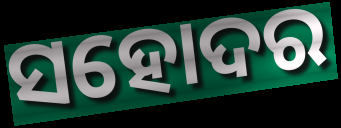
ସହୋଦର